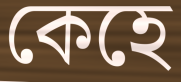
কেহে